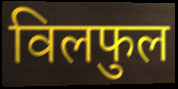
विलफुल